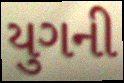
યુગની